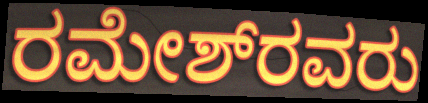
ರಮೇಶ್‌ರವರು